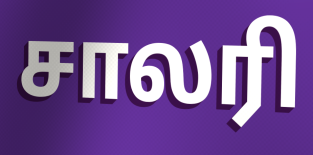
சாலரி